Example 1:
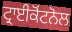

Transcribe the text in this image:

ਟ੍ਰਾਈਕੋਂਟਨੋਲ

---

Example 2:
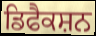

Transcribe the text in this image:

ਡਿਫੈਕਸ਼ਨ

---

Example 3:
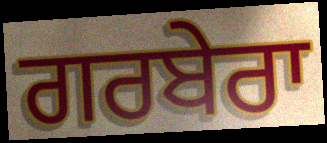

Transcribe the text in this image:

ਗਰਬੇਰਾ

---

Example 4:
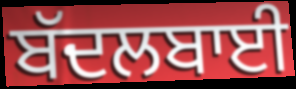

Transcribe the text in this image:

ਬੱਦਲਬਾਈ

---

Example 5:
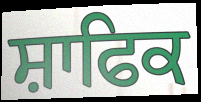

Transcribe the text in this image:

ਸ਼ਾਫਿਕ